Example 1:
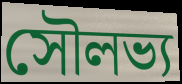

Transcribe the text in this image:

সৌলভ্য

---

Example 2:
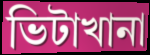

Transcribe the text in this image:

ভিটাখানা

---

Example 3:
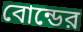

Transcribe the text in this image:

বোন্ডের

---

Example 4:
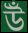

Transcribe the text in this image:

উঁ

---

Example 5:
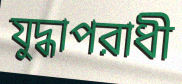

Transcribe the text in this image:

যুদ্ধাপরাধী